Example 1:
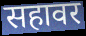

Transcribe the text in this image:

सहावर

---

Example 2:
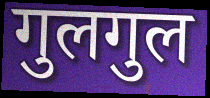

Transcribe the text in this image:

गुलगुल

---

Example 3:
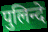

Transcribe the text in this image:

पुलिन्दे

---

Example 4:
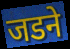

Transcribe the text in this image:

जडने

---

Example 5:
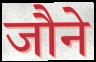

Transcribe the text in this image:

जौने